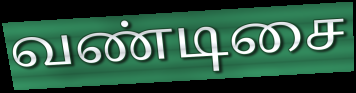
வண்டிசை